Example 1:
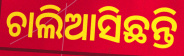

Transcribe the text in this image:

ଚାଲିଆସିଛନ୍ତି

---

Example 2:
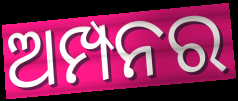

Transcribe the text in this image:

ଅମ୍ପନର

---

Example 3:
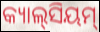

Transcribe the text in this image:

କ୍ୟାଲ୍‌ସିୟମ୍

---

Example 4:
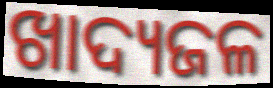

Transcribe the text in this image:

ଖାଦ୍ୟଜଳ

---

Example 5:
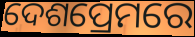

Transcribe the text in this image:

ଦେଶପ୍ରେମରେ